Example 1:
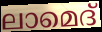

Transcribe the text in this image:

ലാമെദ്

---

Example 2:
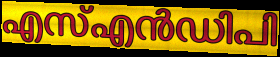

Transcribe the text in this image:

എസ്എൻഡിപി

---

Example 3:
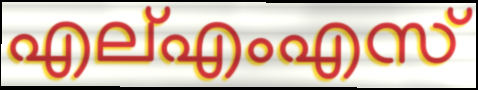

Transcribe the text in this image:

എല്എംഎസ്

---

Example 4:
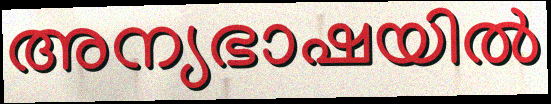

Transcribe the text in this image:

അന്യഭാഷയിൽ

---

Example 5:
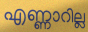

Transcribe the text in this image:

എണ്ണാറില്ല